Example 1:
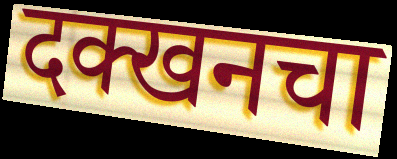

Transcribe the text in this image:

दक्खनचा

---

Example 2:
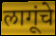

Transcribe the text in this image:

लागूंचे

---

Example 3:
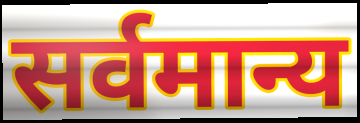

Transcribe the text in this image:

सर्वमान्य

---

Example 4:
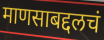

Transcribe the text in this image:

माणसाबद्दलचं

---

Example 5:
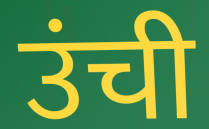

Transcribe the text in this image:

उंची